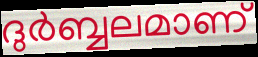
ദുർബ്ബലമാണ്